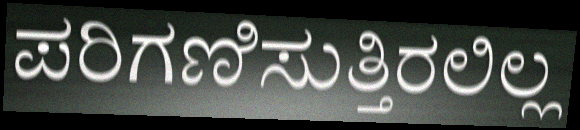
ಪರಿಗಣಿಸುತ್ತಿರಲಿಲ್ಲ